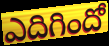
ఎదిగిందో